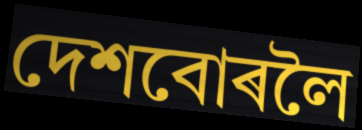
দেশবোৰলৈ